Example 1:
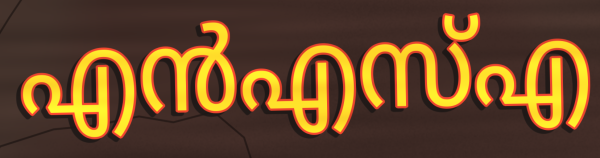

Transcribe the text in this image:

എൻഎസ്എ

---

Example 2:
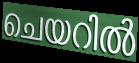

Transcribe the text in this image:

ചെയറിൽ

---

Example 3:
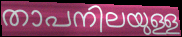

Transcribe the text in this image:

താപനിലയുള്ള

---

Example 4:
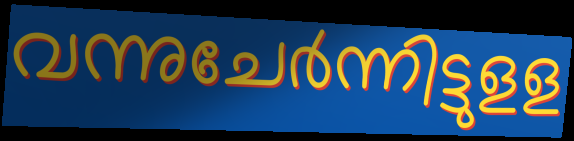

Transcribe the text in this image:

വന്നുചേർന്നിട്ടുളള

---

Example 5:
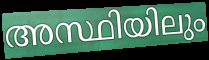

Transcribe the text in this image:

അസ്ഥിയിലും